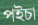
পইচা